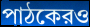
পাঠকেরও